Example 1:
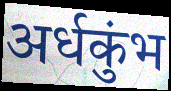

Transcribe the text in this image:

अर्धकुंभ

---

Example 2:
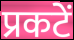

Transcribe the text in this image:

प्रकटें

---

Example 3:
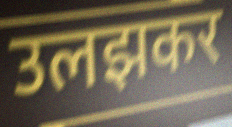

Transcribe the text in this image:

उलझकर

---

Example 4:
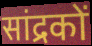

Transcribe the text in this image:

सांद्रकों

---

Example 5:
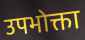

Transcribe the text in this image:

उपभोक्ता